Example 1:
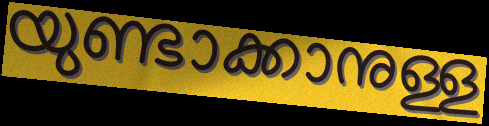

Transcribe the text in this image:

യുണ്ടാക്കാനുള്ള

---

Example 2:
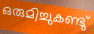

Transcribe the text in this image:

ഒരുമിച്ചുകണ്ടു്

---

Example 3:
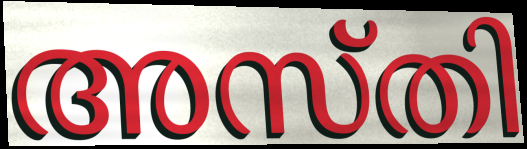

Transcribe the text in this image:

അസ്തി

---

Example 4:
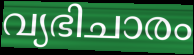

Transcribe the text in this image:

വ്യഭിചാരം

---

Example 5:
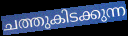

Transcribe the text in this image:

ചത്തുകിടക്കുന്ന